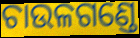
ଚାଉଳଗଣ୍ଡେ